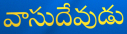
వాసుదేవుడు